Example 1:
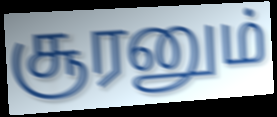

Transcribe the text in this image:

சூரனும்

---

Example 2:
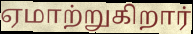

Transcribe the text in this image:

ஏமாற்றுகிறார்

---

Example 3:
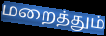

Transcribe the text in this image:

மறைத்தும்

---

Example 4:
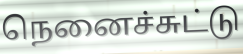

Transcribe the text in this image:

நெனைச்சுட்டு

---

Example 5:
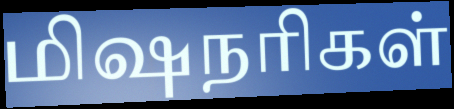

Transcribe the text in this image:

மிஷநரிகள்